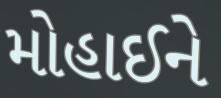
મોહાઈને